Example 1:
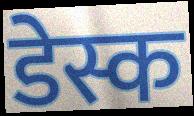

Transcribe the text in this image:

डेस्क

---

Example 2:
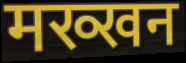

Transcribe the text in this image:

मख्खन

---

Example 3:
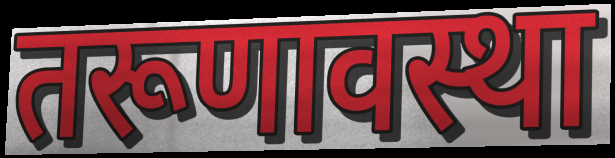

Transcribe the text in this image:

तरूणावस्था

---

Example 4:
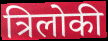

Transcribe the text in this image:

त्रिलोकी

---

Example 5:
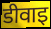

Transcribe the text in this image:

डीवाइ